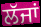
ਲੱਜਾਂ